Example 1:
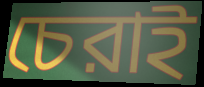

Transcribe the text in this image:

চেরাই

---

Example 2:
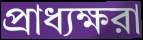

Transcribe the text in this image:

প্রাধ্যক্ষরা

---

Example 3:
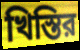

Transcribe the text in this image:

খিস্তির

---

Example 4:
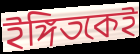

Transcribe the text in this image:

ইঙ্গিতকেই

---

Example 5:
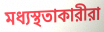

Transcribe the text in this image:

মধ্যস্থতাকারীরা